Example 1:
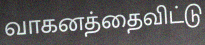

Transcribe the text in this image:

வாகனத்தைவிட்டு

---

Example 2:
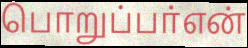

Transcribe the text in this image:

பொறுப்பர்என்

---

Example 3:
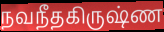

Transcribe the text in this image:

நவநீதகிருஷ்ண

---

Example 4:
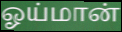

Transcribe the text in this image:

ஓய்மான்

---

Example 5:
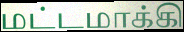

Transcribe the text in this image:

மட்டமாக்கி